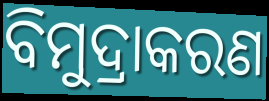
ବିମୁଦ୍ରାକରଣ